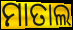
ମାତାଲ